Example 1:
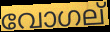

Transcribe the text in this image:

വോഗല്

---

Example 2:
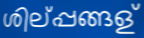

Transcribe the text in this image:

ശില്പ്പങ്ങള്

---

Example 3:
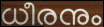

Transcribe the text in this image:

ധീരനും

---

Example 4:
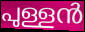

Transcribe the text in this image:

പുള്ളൻ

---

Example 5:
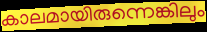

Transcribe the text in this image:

കാലമായിരുന്നെങ്കിലും